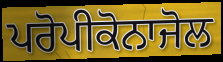
ਪਰੋਪੀਕੋਨਾਜੋਲ